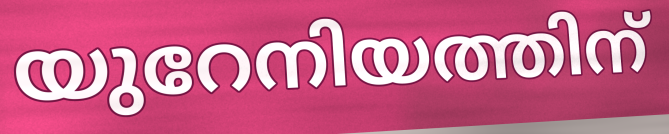
യുറേനിയത്തിന്